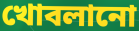
খোবলানো